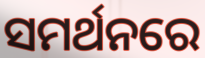
ସମର୍ଥନରେ